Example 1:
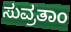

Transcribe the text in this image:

ಸುವ್ರತಾಂ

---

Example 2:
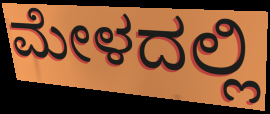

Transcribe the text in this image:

ಮೇಳದಲ್ಲಿ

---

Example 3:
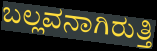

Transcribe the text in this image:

ಬಲ್ಲವನಾಗಿರುತ್ತಿ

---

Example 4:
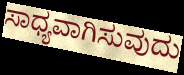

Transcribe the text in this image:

ಸಾಧ್ಯವಾಗಿಸುವುದು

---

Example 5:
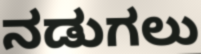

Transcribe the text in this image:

ನಡುಗಲು